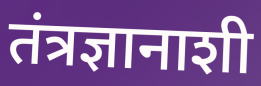
तंत्रज्ञानाशी